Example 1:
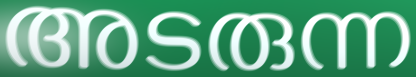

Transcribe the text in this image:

അടരുന്ന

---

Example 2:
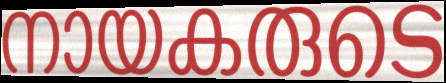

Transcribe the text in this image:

നായകരുടെ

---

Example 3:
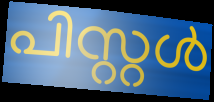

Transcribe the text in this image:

പിസ്റ്റൾ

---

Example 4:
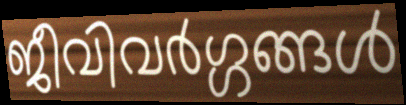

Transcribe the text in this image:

ജീവിവർഗ്ഗങ്ങൾ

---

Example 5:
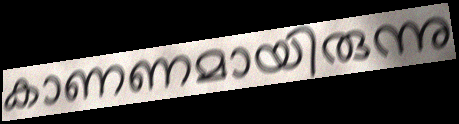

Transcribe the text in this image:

കാണണമായിരുന്നു